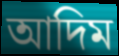
আদিম